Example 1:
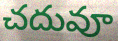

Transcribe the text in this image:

చదువూ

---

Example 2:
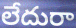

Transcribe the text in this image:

లేదురా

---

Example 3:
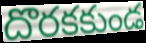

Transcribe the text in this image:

దొరకకుండ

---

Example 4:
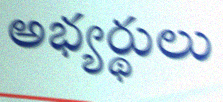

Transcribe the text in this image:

అభ్యర్థులు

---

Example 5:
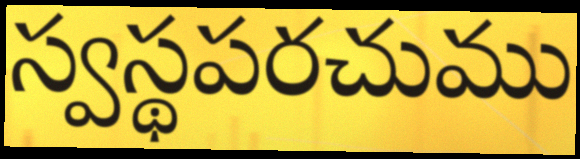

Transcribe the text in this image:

స్వస్థపరచుము